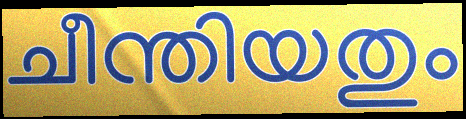
ചീന്തിയതും